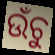
ଉଁଚୁ